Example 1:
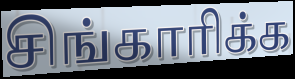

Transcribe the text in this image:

சிங்காரிக்க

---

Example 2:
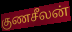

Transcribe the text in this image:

குணசீலன்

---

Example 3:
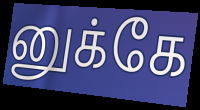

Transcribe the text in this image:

னுக்கே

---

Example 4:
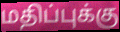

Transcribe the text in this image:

மதிப்புக்கு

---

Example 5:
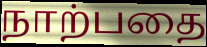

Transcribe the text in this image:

நாற்பதை